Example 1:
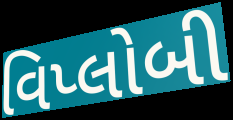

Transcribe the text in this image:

વિપ્લોબી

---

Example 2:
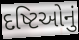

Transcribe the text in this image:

દષ્ટિઓનું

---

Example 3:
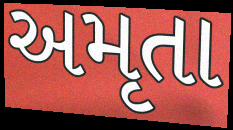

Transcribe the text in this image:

અમૃતા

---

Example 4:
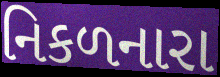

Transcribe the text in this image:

નિકળનારા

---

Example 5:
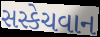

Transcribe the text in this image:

સસ્કેચવાન